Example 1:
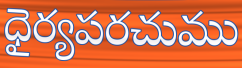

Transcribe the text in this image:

ధైర్యపరచుము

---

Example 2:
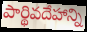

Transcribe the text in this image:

పార్థివదేహాన్ని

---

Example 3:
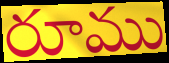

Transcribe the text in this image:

రూము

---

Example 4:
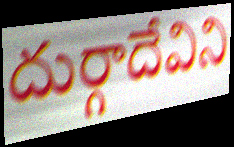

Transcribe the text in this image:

దుర్గాదేవిని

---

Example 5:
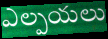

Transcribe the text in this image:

ఎల్పయలు